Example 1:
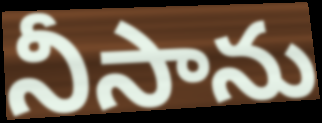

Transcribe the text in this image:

నీసాను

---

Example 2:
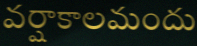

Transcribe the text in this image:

వర్షాకాలమందు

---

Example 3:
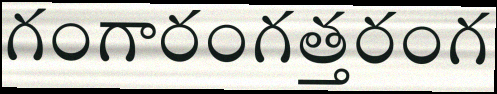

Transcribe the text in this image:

గంగారంగత్తరంగ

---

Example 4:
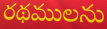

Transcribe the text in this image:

రథములను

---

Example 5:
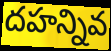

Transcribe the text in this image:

దహన్నివ